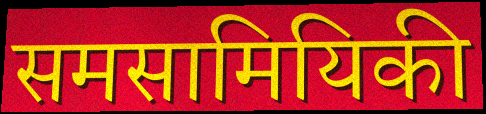
समसामियिकी